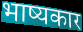
भाष्यकार